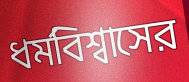
ধর্মবিশ্বাসের